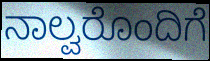
ನಾಲ್ವರೊಂದಿಗೆ